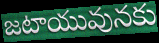
జటాయువునకు